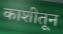
काशीतून